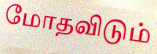
மோதவிடும்